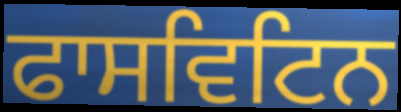
ਫਾਸਵਿਟਿਨ